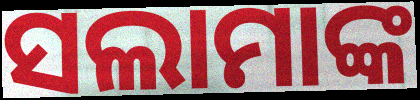
ସଲାମାଙ୍କ